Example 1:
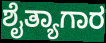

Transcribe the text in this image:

ಶೈತ್ಯಾಗಾರ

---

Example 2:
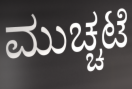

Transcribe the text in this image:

ಮುಚ್ಚಟೆ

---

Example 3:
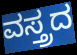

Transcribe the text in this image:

ವಸ್ತ್ರದ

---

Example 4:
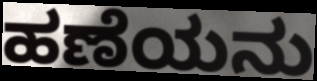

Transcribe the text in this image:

ಹಣೆಯನು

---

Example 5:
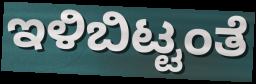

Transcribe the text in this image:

ಇಳಿಬಿಟ್ಟಂತೆ